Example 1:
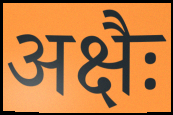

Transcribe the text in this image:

अक्षैः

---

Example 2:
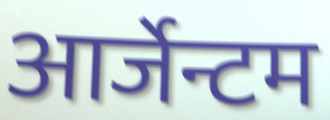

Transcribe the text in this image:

आर्जेन्टम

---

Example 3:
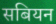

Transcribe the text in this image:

सबियन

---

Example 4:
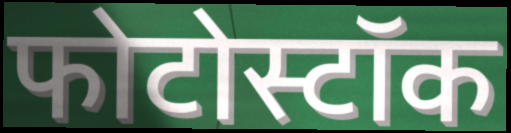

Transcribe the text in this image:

फोटोस्टॉक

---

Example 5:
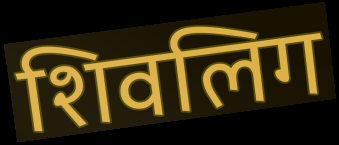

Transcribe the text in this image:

शिवलिग